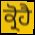
ਕ੍ਰੋਹੈ